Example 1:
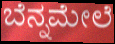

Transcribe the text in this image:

ಬೆನ್ನಮೇಲೆ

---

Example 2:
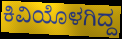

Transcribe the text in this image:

ಕಿವಿಯೊಳಗಿದ್ದ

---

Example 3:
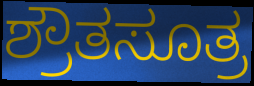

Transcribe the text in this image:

ಶ್ರೌತಸೂತ್ರ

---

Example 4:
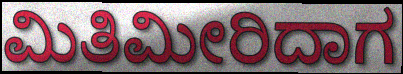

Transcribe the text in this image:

ಮಿತಿಮೀರಿದಾಗ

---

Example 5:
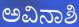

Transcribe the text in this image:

ಅವಿನಾಶಿ